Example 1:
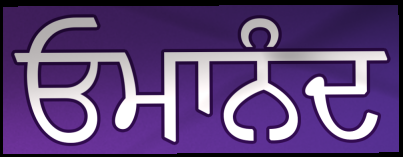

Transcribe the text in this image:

ਓਮਾਨੰਦ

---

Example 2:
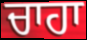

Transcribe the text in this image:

ਚਾਹਾ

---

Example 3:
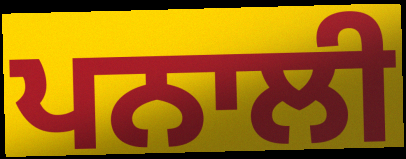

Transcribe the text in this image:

ਪਨਾਲੀ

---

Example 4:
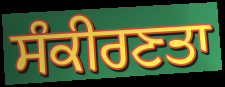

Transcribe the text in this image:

ਸੰਕੀਰਣਤਾ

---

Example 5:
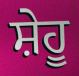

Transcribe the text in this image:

ਸ਼ੇਹੂ